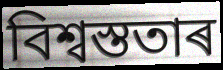
বিশ্বস্ততাৰ